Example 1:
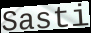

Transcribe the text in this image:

Sasti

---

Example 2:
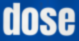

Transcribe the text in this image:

dose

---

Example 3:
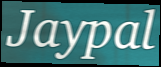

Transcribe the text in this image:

Jaypal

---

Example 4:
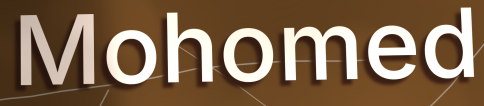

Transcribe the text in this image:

Mohomed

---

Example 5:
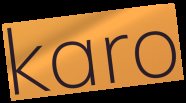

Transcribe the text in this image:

karo